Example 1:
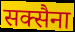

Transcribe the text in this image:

सक्सैना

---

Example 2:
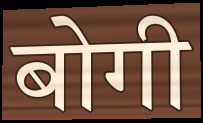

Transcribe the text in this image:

बोगी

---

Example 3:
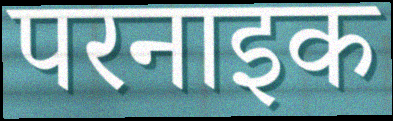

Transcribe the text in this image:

परनाइक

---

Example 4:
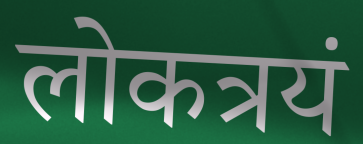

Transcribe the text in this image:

लोकत्रयं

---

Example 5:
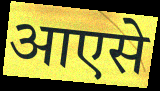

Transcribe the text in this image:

आएसे